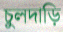
চুলদাড়ি